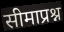
सीमाप्रश्न